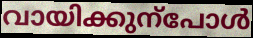
വായിക്കുന്പോൾ